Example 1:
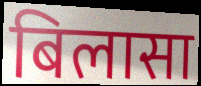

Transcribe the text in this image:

बिलासा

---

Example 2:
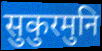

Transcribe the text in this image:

सुकुरमुनि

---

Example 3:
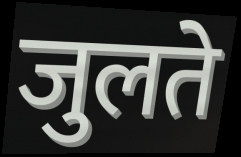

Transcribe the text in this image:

जुलते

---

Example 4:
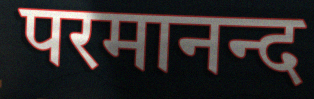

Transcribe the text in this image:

परमानन्‍द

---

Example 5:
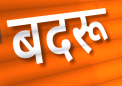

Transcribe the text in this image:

बदरू